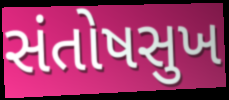
સંતોષસુખ